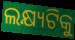
ଲକ୍ଷ୍ୟଟିକୁ